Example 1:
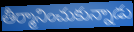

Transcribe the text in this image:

తీర్మానించుకున్నాడు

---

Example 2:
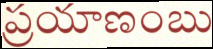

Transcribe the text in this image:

ప్రయాణంబు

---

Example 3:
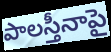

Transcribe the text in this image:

పాలస్తీనాపై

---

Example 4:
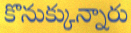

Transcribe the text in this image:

కొనుక్కున్నారు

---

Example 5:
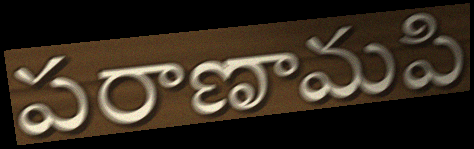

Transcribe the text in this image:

పరాణామపి